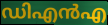
ഡിഎൻഎ